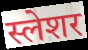
स्लेशर